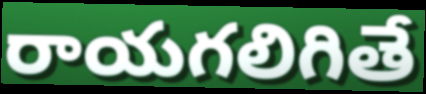
రాయగలిగితే